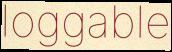
loggable